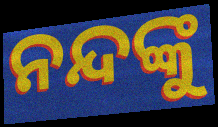
ନନ୍ଦଙ୍କୁ